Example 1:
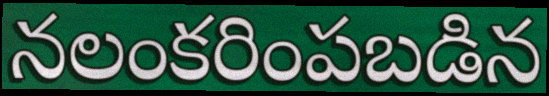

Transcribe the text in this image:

నలంకరింపబడిన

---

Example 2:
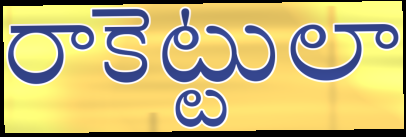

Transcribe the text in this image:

రాకెట్టులా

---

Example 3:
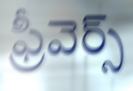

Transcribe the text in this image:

ఫ్రీవెర్స్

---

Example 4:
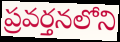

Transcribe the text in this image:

ప్రవర్తనలోని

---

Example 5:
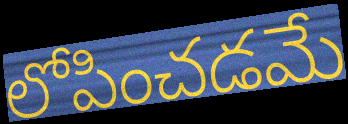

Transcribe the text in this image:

లోపించడమే